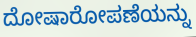
ದೋಷಾರೋಪಣೆಯನ್ನು